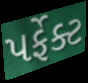
પર્ફેક્ટ